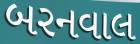
બરનવાલ